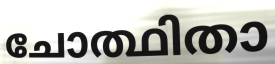
ചോത്ഥിതാ